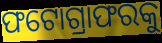
ଫଟୋଗ୍ରାଫରକୁ